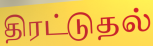
திரட்டுதல்